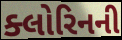
ક્લોરિનની